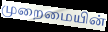
முறைமையின்